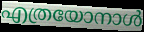
എത്രയോനാൾ